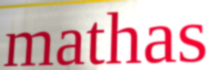
mathas